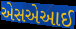
એસએઆઈ